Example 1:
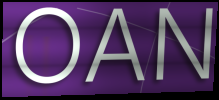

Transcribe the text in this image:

OAN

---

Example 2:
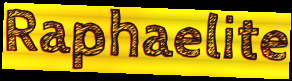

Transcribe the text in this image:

Raphaelite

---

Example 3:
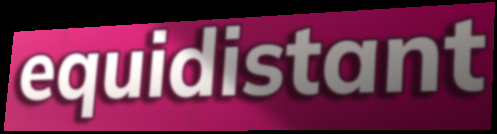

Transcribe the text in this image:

equidistant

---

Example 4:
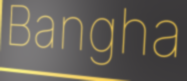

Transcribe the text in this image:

Bangha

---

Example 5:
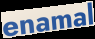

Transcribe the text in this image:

enamal